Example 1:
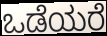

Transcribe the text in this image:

ಒಡೆಯರೆ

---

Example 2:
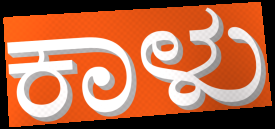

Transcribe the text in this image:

ಕಾಳು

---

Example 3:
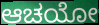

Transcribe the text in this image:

ಆಚಯೋ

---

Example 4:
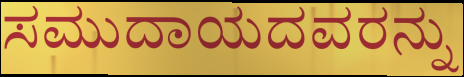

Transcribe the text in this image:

ಸಮುದಾಯದವರನ್ನು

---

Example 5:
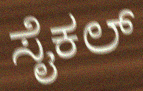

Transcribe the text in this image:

ಸೈಕಲ್